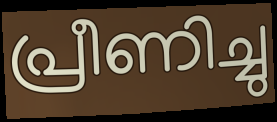
പ്രീണിച്ചു